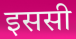
इससी